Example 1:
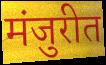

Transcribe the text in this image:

मंजुरीत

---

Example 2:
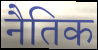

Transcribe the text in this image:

नैतिक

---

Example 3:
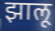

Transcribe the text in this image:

झालू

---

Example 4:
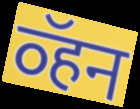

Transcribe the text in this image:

व्हॅन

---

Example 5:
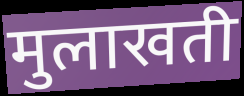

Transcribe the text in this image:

मुलाखती